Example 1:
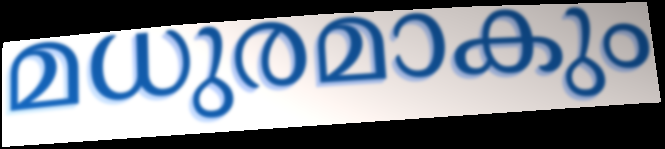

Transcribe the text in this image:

മധുരമാകും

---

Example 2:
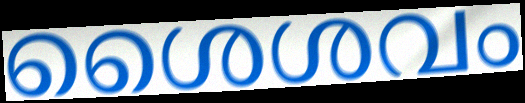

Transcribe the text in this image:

ശൈശവം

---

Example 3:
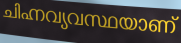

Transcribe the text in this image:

ചിഹ്നവ്യവസ്ഥയാണ്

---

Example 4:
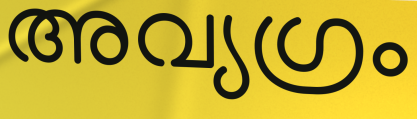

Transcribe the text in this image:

അവ്യഗ്രം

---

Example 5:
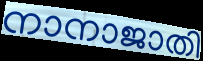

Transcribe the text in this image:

നാനാജാതി